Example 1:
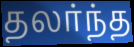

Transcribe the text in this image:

தலர்ந்த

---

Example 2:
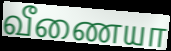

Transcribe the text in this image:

வீணையா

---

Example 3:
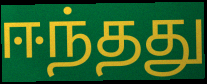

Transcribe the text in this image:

ஈந்தது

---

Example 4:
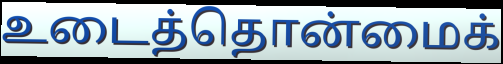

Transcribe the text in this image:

உடைத்தொன்மைக்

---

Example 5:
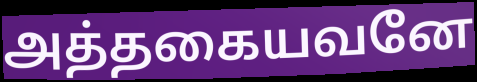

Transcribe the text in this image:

அத்தகையவனே